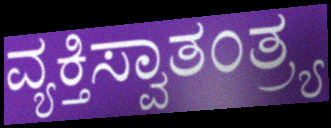
ವ್ಯಕ್ತಿಸ್ವಾತಂತ್ರ್ಯ